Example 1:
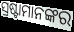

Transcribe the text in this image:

ସ୍ରଷ୍ଟାମାନଙ୍କର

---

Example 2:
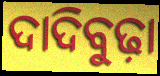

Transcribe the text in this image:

ଦାଦିବୁଢ଼ା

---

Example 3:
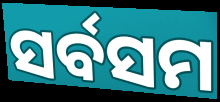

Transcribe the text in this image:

ସର୍ବସମ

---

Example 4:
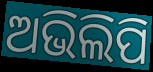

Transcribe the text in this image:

ଅଭିଲିପି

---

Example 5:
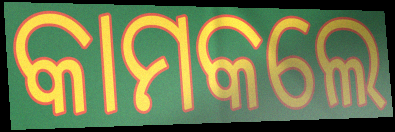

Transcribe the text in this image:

କାମକଲେ